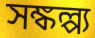
সঙ্কল্প্য